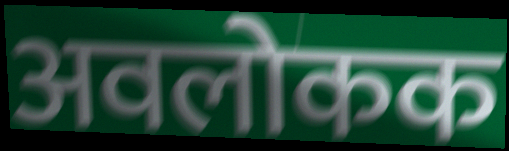
अवलोकक